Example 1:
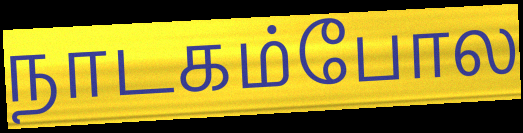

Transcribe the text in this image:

நாடகம்போல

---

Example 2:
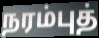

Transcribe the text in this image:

நரம்புத்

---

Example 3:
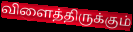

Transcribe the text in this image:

விளைத்திருக்கும்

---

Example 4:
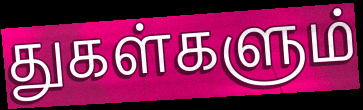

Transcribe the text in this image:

துகள்களும்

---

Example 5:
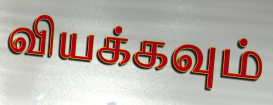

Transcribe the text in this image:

வியக்கவும்